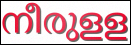
നീരുളള